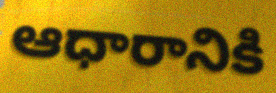
ఆధారానికి